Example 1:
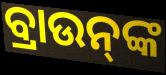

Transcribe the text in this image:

ବ୍ରାଉନ୍‌ଙ୍କ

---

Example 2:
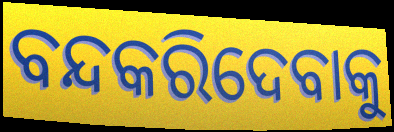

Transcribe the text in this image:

ବନ୍ଦକରିଦେବାକୁ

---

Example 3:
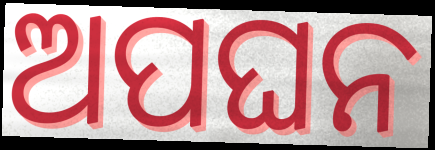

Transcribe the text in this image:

ଅପଘନ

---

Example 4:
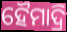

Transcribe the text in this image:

ହୈମାଦ୍ରି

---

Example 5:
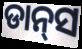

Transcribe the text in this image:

ଡାନ୍‍ସ